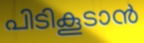
പിടികൂടാൻ